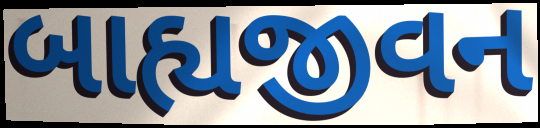
બાહ્યજીવન